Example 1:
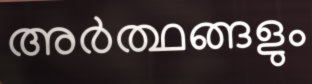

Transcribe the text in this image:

അർത്ഥങ്ങളും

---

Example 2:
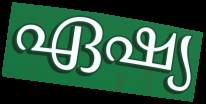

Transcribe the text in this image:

ഏഷ്യ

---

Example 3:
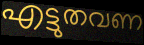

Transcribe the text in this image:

എട്ടുതവണ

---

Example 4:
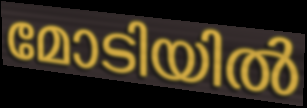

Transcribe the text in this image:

മോടിയിൽ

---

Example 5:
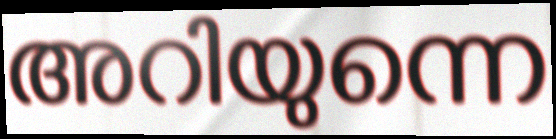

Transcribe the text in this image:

അറിയുന്നെ